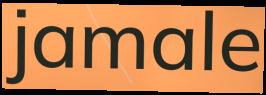
jamale